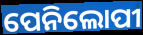
ପେନିଲୋପୀ